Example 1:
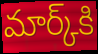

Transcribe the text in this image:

మార్క్‌కి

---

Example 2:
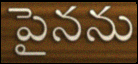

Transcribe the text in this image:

పైనను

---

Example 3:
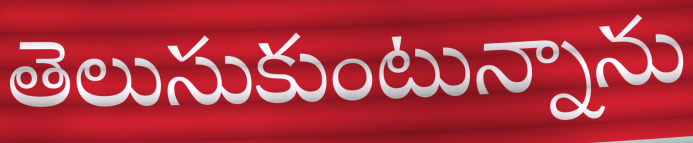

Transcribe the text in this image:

తెలుసుకుంటున్నాను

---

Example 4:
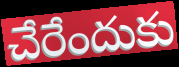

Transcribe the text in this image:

చేరేందుకు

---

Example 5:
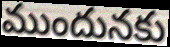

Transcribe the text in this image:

ముందునకు